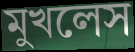
মুখলেস